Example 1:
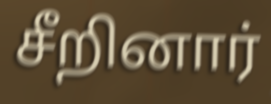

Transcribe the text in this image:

சீறினார்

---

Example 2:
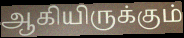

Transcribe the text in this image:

ஆகியிருக்கும்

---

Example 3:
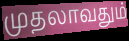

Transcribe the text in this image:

முதலாவதும்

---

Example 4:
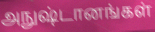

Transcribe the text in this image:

அநுஷ்டானங்கள்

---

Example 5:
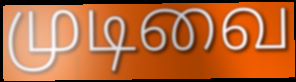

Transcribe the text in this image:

முடிவை